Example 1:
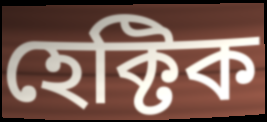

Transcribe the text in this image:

হেক্টিক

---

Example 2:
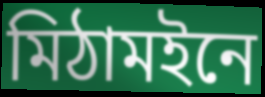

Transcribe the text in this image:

মিঠামইনে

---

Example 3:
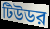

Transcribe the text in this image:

টিউডর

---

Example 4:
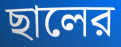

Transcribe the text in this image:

ছালের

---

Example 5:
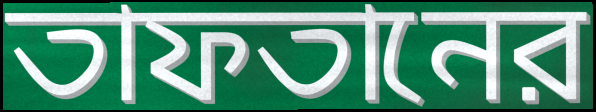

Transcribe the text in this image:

তাফতানের